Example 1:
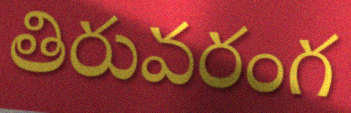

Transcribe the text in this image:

తిరువరంగ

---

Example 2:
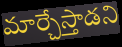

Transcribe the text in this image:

మార్చేస్తాడని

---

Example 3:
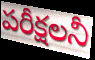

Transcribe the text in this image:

పరీక్షలనీ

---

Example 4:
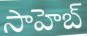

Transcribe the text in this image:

సాహెబ్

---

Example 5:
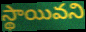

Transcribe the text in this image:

స్థాయివని